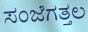
ಸಂಜೆಗತ್ತಲ